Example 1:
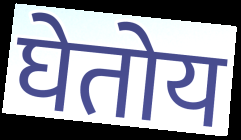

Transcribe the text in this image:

घेतोय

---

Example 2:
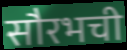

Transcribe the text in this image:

सौरभची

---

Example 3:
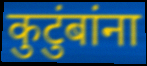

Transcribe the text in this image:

कुटुंबांना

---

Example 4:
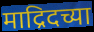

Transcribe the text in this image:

माद्रिदच्या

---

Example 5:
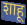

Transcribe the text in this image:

शाहू